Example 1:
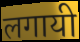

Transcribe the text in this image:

लगायी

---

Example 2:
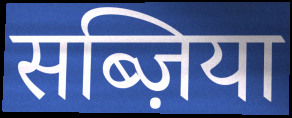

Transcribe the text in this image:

सब्ज़िया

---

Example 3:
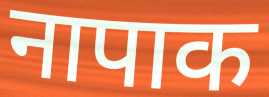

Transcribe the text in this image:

नापाक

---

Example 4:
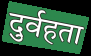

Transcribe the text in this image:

दुर्वहता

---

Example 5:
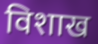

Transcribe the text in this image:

विशाख